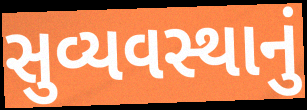
સુવ્યવસ્થાનું